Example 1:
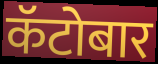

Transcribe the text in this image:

कॅटोबार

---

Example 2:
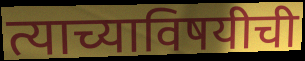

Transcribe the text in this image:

त्याच्याविषयीची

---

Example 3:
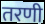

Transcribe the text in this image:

तरणी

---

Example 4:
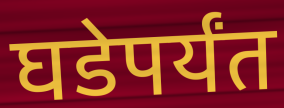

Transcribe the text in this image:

घडेपर्यंत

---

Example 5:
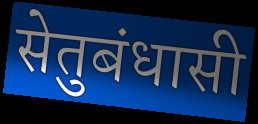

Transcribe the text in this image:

सेतुबंधासी